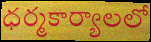
ధర్మకార్యాలలో